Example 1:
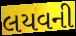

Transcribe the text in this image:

લયવની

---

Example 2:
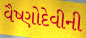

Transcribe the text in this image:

વૈષ્ણોદેવીની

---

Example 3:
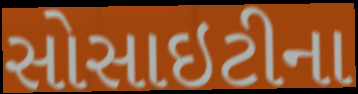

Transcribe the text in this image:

સોસાઇટીના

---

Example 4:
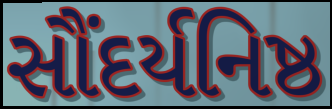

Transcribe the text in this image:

સૌંદર્યનિષ્ઠ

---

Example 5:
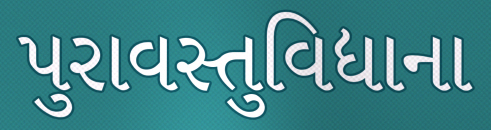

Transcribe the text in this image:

પુરાવસ્તુવિદ્યાના